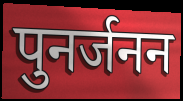
पुनर्जनन